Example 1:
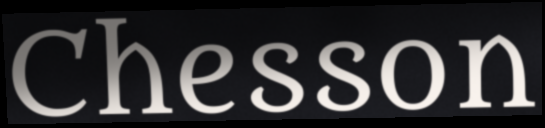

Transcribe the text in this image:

Chesson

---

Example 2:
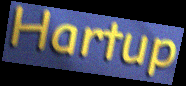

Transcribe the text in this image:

Hartup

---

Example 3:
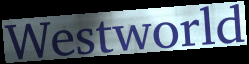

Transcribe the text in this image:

Westworld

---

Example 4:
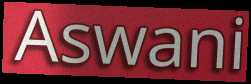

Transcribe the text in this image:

Aswani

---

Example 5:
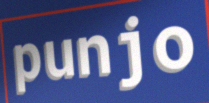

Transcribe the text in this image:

punjo